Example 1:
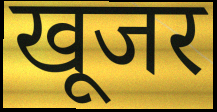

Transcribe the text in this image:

खूजर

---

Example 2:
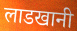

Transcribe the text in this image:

लाडखानी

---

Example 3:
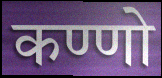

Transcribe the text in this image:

कण्णो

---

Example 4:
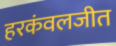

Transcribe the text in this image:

हरकंवलजीत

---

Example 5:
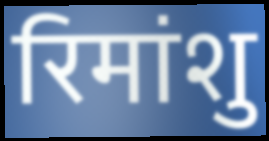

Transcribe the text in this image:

रिमांशु